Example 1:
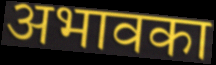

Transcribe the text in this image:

अभावका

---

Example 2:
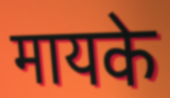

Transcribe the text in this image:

मायके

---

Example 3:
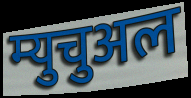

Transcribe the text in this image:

म्युचुअल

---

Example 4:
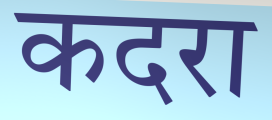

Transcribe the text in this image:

कदरा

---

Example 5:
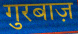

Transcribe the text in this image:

गुरबाज़